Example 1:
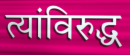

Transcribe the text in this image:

त्यांविरुद्ध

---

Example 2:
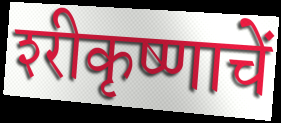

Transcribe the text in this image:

श्रीकृष्णाचें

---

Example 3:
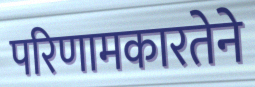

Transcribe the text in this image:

परिणामकारतेने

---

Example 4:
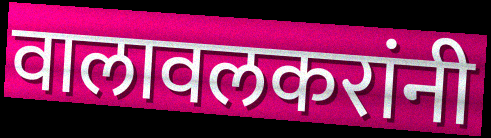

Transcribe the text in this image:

वालावलकरांनी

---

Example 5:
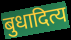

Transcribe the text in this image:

बुधादित्य